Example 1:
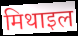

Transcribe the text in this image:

मिथाइल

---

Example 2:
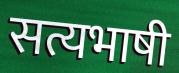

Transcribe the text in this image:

सत्यभाषी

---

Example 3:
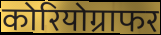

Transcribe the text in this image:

कोरियोग्राफर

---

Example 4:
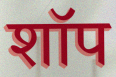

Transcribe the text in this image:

शॉप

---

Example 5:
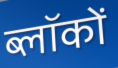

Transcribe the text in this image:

ब्लॉकों